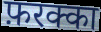
फ़रक्का